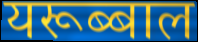
यरूब्बाल